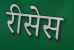
रीसेस